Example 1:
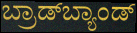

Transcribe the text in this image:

ಬ್ರಾಡ್‌ಬ್ಯಾಂಡ್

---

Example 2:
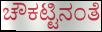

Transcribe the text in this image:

ಚೌಕಟ್ಟಿನಂತೆ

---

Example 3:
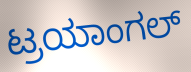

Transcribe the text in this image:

ಟ್ರಯಾಂಗಲ್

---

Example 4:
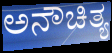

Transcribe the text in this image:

ಅನೌಚಿತ್ಯ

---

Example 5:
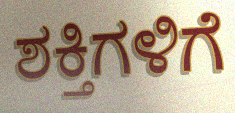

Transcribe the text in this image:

ಶಕ್ತಿಗಳಿಗೆ